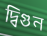
দ্বিগুন